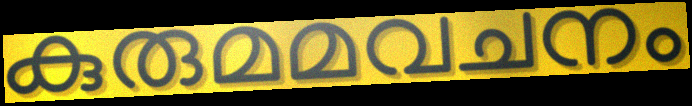
കുരുമമവചനം